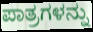
ಪಾತ್ರಗಳನ್ನು